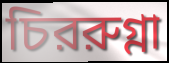
চিররুগ্না